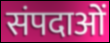
संपदाओं